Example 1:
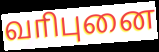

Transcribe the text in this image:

வரிபுனை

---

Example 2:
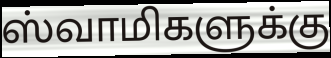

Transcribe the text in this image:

ஸ்வாமிகளுக்கு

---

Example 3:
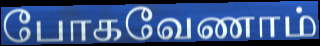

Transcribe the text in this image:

போகவேணாம்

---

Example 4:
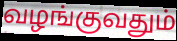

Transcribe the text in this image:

வழங்குவதும்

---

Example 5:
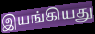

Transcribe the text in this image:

இயங்கியது